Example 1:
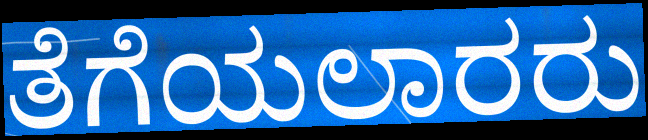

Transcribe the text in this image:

ತೆಗೆಯಲಾರರು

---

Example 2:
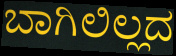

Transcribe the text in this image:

ಬಾಗಿಲಿಲ್ಲದ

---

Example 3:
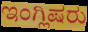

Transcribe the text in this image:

ಇಂಗ್ಲಿಷರು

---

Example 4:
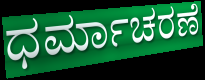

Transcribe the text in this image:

ಧರ್ಮಾಚರಣೆ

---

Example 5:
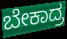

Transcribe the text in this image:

ಬೇಕಾದ್ರ